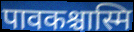
पावकश्चास्मि